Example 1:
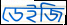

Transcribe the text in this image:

ডেইজি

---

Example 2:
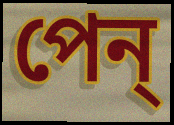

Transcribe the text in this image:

পেন্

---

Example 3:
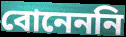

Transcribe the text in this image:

বোনেননি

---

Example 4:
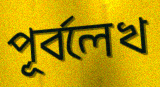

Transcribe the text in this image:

পূর্বলেখ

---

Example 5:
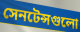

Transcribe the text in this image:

সেনটেন্সগুলো